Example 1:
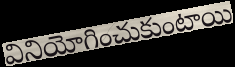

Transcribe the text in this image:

వినియోగించుకుంటాయి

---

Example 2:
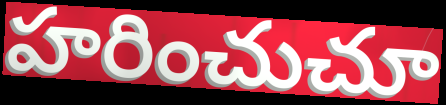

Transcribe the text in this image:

హరించుచూ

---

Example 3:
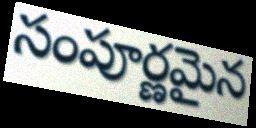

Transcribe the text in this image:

సంపూర్ణమైన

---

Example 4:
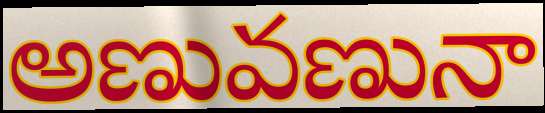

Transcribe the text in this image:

అణువణునా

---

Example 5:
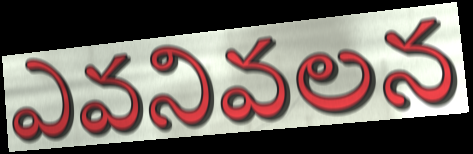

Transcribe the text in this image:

ఎవనివలన